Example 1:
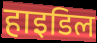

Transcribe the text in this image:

हाइडिल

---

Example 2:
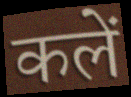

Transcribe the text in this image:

कलें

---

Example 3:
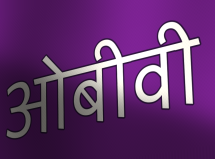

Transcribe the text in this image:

ओबीवी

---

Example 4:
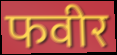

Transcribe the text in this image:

फवीर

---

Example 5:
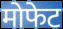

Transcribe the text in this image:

मोफेट